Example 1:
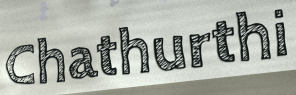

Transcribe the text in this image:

Chathurthi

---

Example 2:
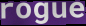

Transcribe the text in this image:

rogue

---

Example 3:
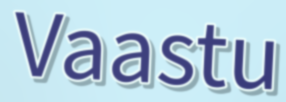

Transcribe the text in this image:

Vaastu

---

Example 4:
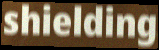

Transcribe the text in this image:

shielding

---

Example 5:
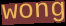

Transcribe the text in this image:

wong